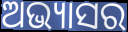
ଅଭ୍ୟାସର